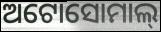
ଅଟୋସୋମାଲ୍